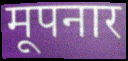
मूपनार